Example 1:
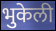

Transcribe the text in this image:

भुकेली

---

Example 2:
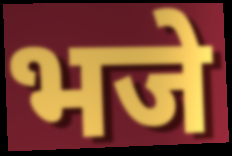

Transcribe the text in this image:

भजे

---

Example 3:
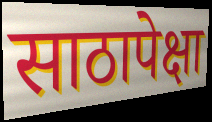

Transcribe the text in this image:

साठापेक्षा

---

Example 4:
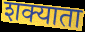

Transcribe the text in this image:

शक्याता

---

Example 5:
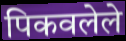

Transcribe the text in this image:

पिकवलेले